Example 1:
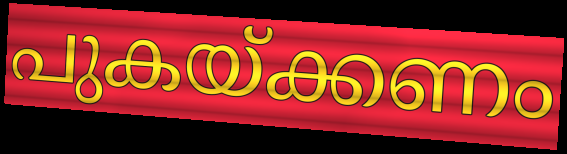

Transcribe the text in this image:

പുകയ്ക്കണം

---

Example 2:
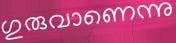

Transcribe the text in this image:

ഗുരുവാണെന്നു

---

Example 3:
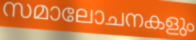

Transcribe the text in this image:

സമാലോചനകളും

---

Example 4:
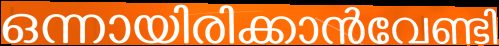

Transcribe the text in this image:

ഒന്നായിരിക്കാൻവേണ്ടി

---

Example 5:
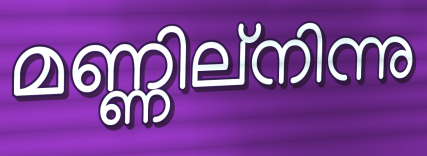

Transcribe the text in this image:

മണ്ണില്നിന്നു